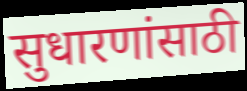
सुधारणांसाठी